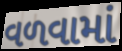
વળવામાં